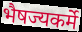
भैषज्यकर्मे